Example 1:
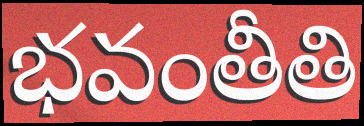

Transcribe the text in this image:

భవంతీతి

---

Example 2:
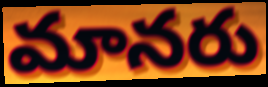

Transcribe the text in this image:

మానరు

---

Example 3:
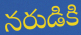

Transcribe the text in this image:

నరుడికి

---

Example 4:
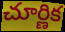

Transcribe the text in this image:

చూర్ణిక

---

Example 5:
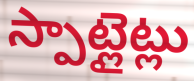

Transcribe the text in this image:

స్పాట్లైట్లు